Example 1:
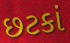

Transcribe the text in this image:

છટકાં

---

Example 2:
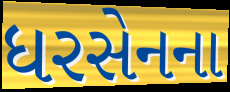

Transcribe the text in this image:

ધરસેનના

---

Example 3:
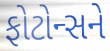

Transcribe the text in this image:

ફોટોન્સને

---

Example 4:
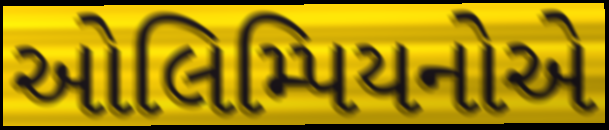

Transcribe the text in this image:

ઓલિમ્પિયનોએ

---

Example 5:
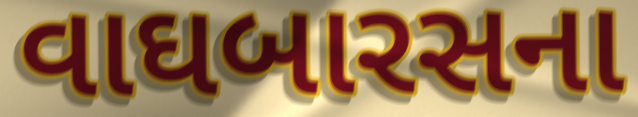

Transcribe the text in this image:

વાઘબારસના